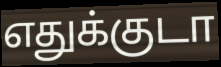
எதுக்குடா